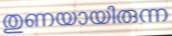
തുണയായിരുന്ന